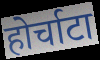
होर्चाटा